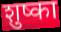
शुष्का